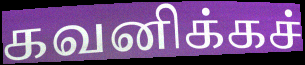
கவனிக்கச்